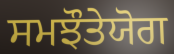
ਸਮਝੌਤੇਯੋਗ